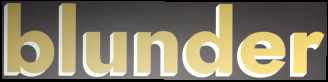
blunder